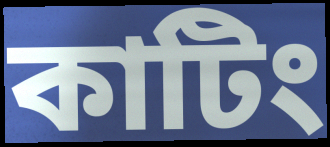
কাটিং